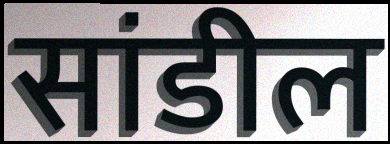
सांडील